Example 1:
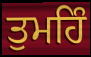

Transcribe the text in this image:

ਤੁਮਹਿੰ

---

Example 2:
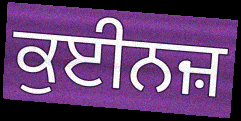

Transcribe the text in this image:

ਕੁਈਨਜ਼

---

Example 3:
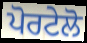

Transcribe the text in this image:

ਪੋਰਟੇਲੋ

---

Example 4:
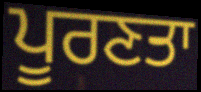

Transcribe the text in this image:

ਪੂਰਣਤਾ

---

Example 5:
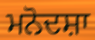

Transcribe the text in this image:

ਮਨੋਦਸ਼ਾ